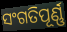
ସଂଗତିପୂର୍ଣ୍ଣ